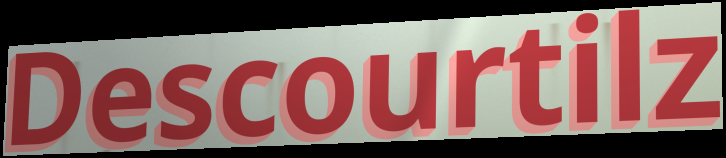
Descourtilz